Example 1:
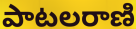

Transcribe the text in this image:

పాటలరాణి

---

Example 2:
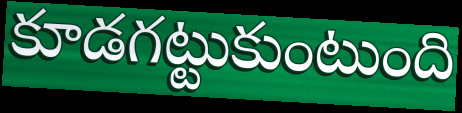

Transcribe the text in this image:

కూడగట్టుకుంటుంది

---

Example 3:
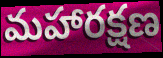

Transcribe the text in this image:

మహారక్షణ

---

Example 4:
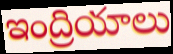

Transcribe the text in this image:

ఇంద్రియాలు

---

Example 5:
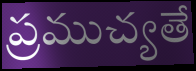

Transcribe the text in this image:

ప్రముచ్యతే